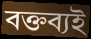
বক্তব্যই